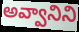
అవ్వానిని